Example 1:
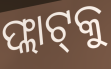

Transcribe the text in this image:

ଫ୍ଲାଟ୍‌କୁ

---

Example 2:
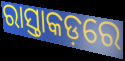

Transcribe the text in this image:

ରାସ୍ତାକଡ଼ରେ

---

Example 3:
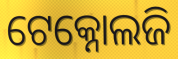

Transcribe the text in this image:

ଟେକ୍ନୋଲଜି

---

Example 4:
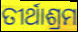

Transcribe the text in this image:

ତୀର୍ଥାଶ୍ରମ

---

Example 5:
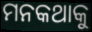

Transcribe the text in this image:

ମନକଥାକୁ